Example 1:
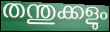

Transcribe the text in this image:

തന്തുക്കളും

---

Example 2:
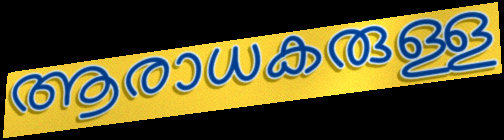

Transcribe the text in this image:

ആരാധകരുള്ള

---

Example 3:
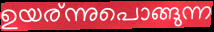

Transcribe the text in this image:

ഉയര്ന്നുപൊങ്ങുന്ന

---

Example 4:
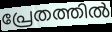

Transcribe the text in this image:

പ്രേതത്തിൽ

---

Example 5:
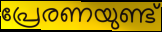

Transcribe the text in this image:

പ്രേരണയുണ്ട്